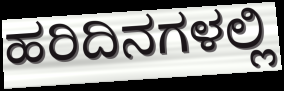
ಹರಿದಿನಗಳಲ್ಲಿ